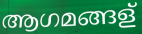
ആഗമങ്ങള്